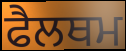
ਫੈਲਥਮ